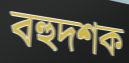
বহুদশক